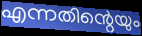
എന്നതിന്റെയും